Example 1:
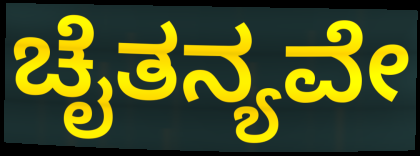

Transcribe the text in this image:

ಚೈತನ್ಯವೇ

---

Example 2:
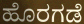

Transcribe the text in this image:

ಹೊರಗಡೆ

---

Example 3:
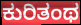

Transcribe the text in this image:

ಕುರಿತಂಥ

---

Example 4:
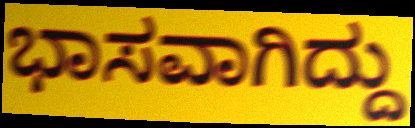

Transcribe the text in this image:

ಭಾಸವಾಗಿದ್ದು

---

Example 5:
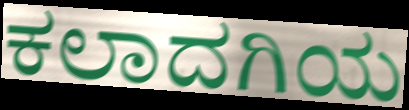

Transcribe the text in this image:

ಕಲಾದಗಿಯ